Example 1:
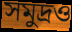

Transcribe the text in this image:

সমুদ্রও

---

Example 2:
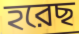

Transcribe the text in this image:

হরেছ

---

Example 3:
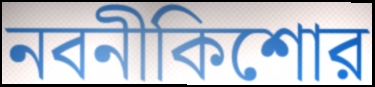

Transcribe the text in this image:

নবনীকিশোর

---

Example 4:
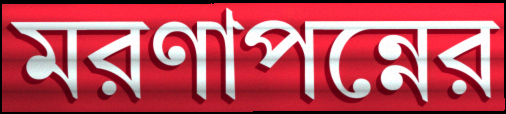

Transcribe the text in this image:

মরণাপন্নের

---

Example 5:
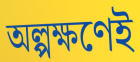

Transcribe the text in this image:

অল্পক্ষণেই